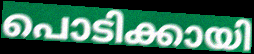
പൊടിക്കായി